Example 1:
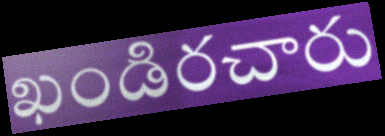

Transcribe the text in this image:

ఖండిరచారు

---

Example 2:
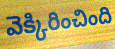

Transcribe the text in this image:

వెక్కిరించింది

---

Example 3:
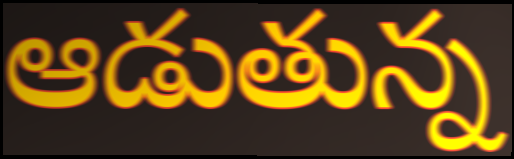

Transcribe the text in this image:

ఆడుతున్న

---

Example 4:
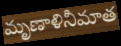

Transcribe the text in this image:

మృణాళినీమాత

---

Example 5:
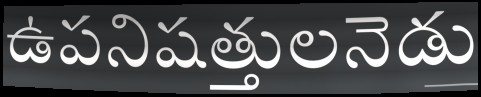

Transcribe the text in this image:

ఉపనిషత్తులనెడు